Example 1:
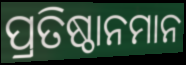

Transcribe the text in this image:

ପ୍ରତିଷ୍ଠାନମାନ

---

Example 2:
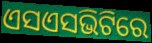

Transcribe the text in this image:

ଏସଏସଭିଟିରେ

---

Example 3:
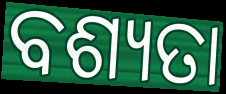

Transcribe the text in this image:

ବଶ୍ୟତା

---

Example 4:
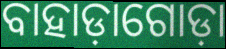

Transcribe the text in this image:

ବାହାଡ଼ାଗୋଡ଼ା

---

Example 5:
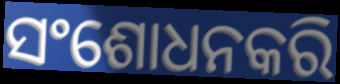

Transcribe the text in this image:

ସଂଶୋଧନକରି